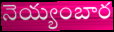
నెయ్యంబార